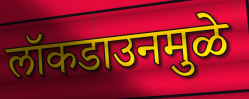
लॉकडाउनमुळे